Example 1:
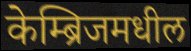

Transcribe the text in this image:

केम्ब्रिजमधील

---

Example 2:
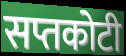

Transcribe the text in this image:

सप्तकोटी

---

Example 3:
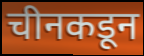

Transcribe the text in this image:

चीनकडून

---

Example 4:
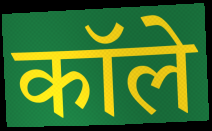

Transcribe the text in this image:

कॉले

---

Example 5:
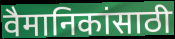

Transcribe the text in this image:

वैमानिकांसाठी